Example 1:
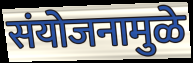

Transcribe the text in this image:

संयोजनामुळे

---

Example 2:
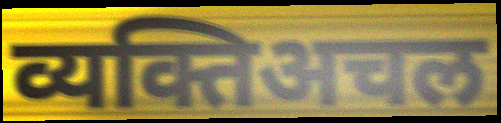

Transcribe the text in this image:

व्यक्तिअचल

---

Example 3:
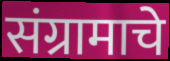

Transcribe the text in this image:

संग्रामाचे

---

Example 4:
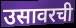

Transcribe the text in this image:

उसावरची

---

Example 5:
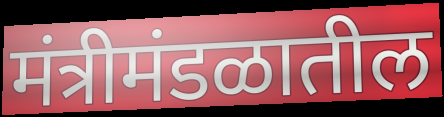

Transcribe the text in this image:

मंत्रीमंडळातील